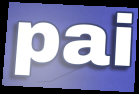
pai